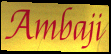
Ambaji